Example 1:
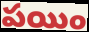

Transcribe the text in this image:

పయిం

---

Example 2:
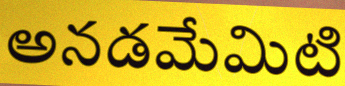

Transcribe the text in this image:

అనడమేమిటి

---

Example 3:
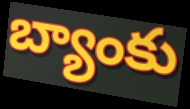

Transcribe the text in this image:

బ్యాంకు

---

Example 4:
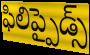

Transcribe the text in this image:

ఫిలిప్పైడ్స్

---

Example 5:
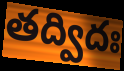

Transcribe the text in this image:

తద్విదః